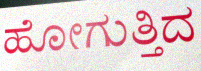
ಹೋಗುತ್ತಿದ